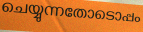
ചെയ്യുന്നതോടൊപ്പം